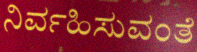
ನಿರ್ವಹಿಸುವಂತೆ